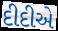
દીદીએ